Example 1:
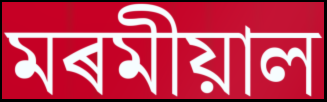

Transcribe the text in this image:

মৰমীয়াল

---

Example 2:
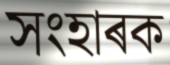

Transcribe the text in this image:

সংহাৰক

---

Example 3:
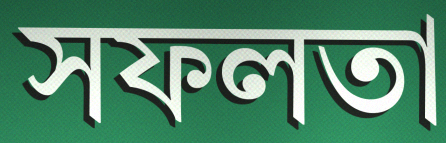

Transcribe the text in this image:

সফলতা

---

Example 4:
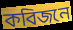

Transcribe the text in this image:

কবিজনে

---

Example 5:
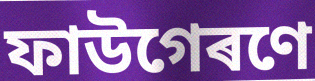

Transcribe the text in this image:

ফাউগেৰণে